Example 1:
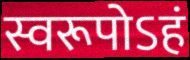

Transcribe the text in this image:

स्वरूपोऽहं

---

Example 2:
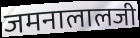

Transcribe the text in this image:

जमनालालजी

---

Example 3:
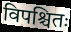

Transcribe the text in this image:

विपश्चितः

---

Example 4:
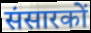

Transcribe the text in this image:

संसारकों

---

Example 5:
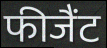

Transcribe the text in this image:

फीजैंट